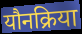
यौनक्रिया